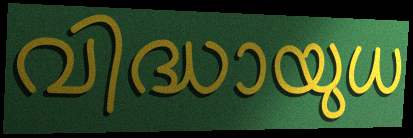
വിദ്ധായുധ